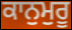
ਕਾਨੁਮੁਰੂ